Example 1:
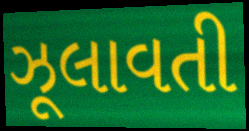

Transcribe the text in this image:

ઝૂલાવતી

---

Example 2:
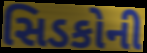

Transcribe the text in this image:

સિડકોની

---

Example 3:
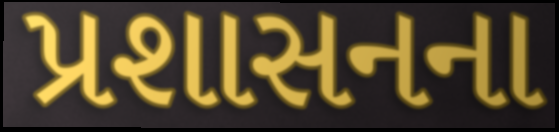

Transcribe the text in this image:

પ્રશાસનના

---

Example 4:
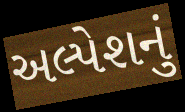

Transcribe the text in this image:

અલ્પેશનું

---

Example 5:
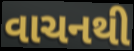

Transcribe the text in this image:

વાચનથી